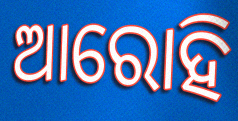
ଆରୋହି